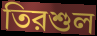
তিরশুল